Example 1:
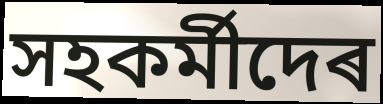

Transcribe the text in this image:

সহকৰ্মীদেৰ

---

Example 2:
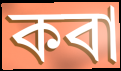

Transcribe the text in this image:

কবা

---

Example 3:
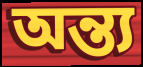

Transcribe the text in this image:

অন্ত্য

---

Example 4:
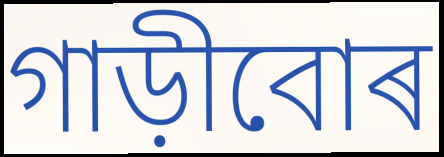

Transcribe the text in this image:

গাড়ীবোৰ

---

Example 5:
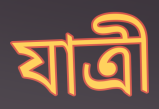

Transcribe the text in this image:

যাত্ৰী